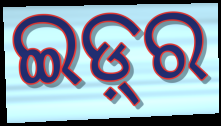
ଇଡ଼୍‍ର